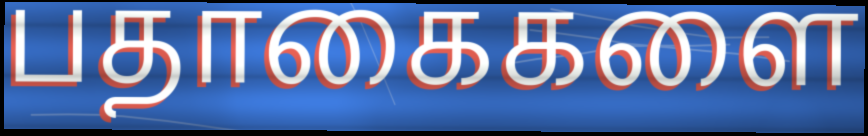
பதாகைகளை